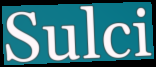
Sulci